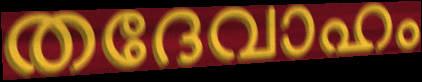
തദേവാഹം